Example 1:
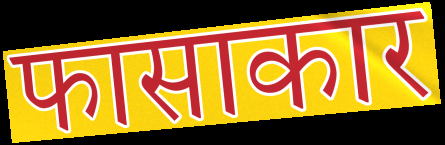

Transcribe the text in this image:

फासाकार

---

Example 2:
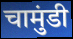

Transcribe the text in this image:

चामुंडी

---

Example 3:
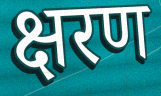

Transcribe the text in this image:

क्षरण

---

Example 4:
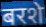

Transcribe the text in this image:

बरशे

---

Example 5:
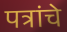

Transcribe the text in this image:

पत्रांचे